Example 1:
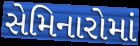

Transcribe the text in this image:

સેમિનારોમાં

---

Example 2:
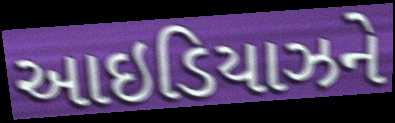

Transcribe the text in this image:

આઇડિયાઝને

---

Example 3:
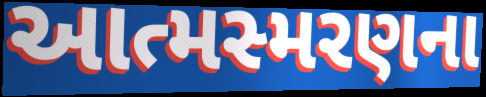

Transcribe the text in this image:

આત્મસ્મરણના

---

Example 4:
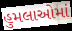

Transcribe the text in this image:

હુમલાઓમાં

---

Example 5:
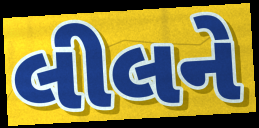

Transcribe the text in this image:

લીલને